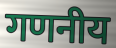
गणनीय